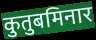
कुतुबमिनार